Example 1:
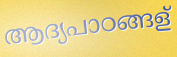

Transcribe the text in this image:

ആദ്യപാഠങ്ങള്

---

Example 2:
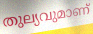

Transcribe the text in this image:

തുല്യവുമാണ്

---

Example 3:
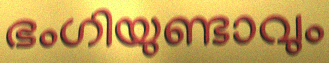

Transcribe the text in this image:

ഭംഗിയുണ്ടാവും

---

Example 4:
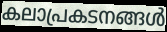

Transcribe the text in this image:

കലാപ്രകടനങ്ങൾ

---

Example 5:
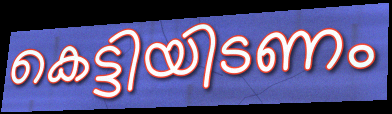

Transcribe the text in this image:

കെട്ടിയിടണം